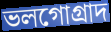
ভলগোগ্রাদ